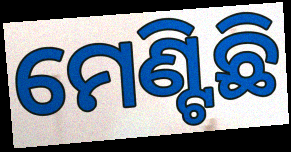
ମେଣ୍ଟିଛି